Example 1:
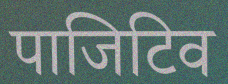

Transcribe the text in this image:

पाजिटिव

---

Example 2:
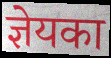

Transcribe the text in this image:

ज्ञेयका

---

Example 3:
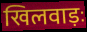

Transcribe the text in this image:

खिलवाड़ः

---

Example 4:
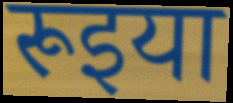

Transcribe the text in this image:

रूइया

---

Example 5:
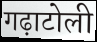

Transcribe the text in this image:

गढ़ाटोली